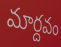
మార్దవం